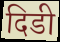
दिडी